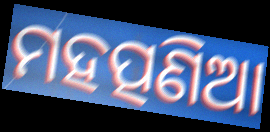
ମହତ୍ପଣିଆ